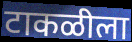
टाकळीला